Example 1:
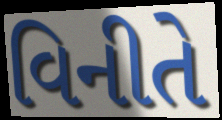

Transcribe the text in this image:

વિનીતે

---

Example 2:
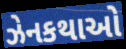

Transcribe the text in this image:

ઝેનકથાઓ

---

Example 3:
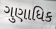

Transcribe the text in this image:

ગુણાધિક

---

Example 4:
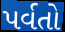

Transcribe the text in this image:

પર્વતો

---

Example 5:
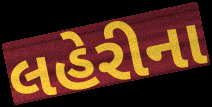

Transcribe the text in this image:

લહેરીના